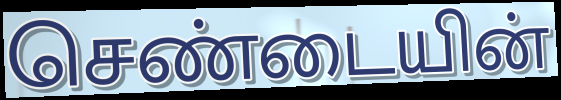
செண்டையின்